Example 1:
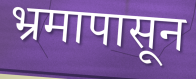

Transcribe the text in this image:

भ्रमापासून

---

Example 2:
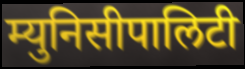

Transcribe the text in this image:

म्युनिसीपालिटी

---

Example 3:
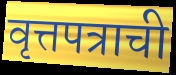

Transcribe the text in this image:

वृत्तपत्राची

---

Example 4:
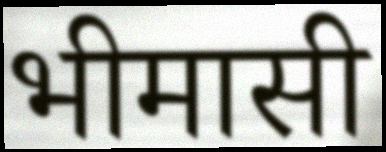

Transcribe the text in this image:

भीमासी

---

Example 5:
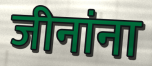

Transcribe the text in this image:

जीनांना